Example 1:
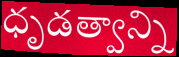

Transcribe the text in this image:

ధృడత్వాన్ని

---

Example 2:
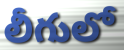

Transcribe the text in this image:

లీగులో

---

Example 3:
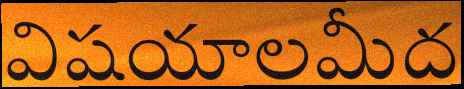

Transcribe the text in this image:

విషయాలమీద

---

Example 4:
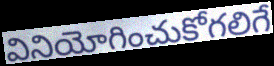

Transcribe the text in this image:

వినియోగించుకోగలిగే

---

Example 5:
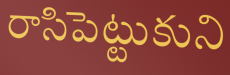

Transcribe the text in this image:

రాసిపెట్టుకుని